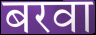
बरवा